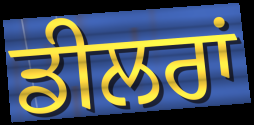
ਡੀਲਰਾਂ